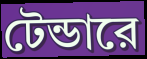
টেন্ডারে